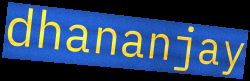
dhananjay